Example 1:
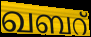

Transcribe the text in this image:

ഖബറ്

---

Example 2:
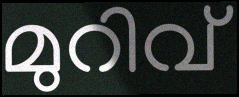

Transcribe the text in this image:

മുറിവ്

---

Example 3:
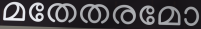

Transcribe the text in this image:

മതേതരമോ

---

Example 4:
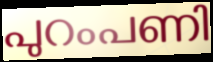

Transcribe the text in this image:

പുറംപണി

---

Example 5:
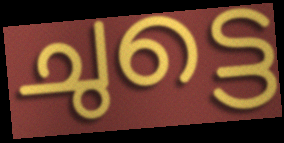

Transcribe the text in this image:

ചുട്ടെ